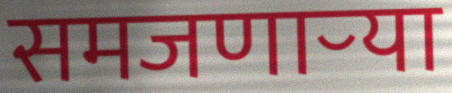
समजणाऱ्या